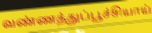
வண்ணத்துப்பூச்சியாய்